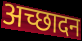
अच्छादन